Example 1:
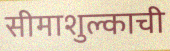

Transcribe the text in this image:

सीमाशुल्काची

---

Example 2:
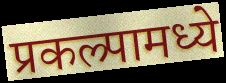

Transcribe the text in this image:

प्रकल्पामध्ये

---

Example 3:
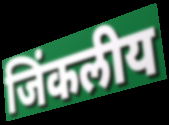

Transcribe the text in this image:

जिंकलीय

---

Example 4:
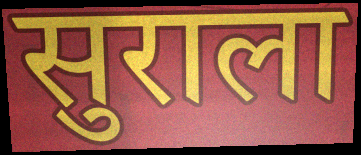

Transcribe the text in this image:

सुराला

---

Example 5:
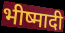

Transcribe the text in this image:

भीष्मादी